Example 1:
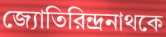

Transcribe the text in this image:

জ্যোতিরিন্দ্রনাথকে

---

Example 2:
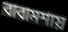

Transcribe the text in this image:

বাবামশায়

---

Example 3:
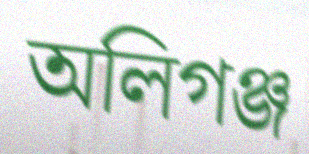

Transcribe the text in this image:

অলিগঞ্জ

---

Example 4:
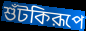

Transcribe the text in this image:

শুঁটকিরূপে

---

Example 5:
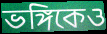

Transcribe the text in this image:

ভঙ্গিকেও